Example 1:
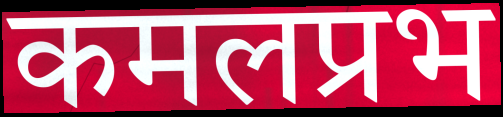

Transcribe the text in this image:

कमलप्रभ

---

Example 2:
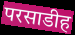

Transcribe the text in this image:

परसाडीह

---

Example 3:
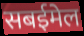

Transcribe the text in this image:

सबईमेल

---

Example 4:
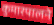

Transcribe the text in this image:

कुमारपालने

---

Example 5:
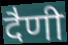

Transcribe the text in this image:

दैणी